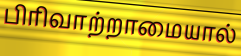
பிரிவாற்றாமையால்